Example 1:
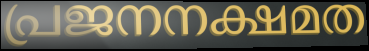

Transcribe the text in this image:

പ്രജനനക്ഷമത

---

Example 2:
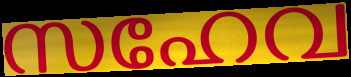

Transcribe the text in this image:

സഹേവ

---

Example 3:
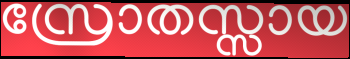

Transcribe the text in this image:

സ്രോതസ്സായ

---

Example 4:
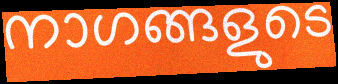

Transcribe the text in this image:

നാഗങ്ങളുടെ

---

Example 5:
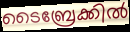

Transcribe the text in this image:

ടൈബ്രേക്കിൽ